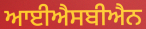
ਆਈਐਸਬੀਐਨ